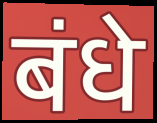
बंधे